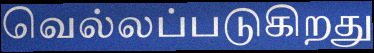
வெல்லப்படுகிறது